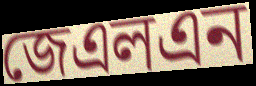
জেএলএন